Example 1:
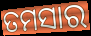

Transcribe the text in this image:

ତମସାର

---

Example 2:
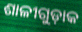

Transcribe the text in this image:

ଶାଳୀଗୁଡ଼ାକ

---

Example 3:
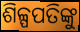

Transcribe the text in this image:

ଶିଳ୍ପପତିଙ୍କୁ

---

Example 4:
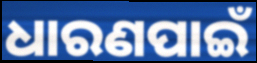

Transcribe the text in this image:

ଧାରଣପାଇଁ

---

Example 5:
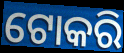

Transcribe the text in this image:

ଟୋକରି